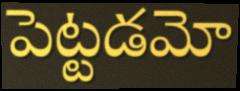
పెట్టడమో